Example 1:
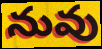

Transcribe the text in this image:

నువు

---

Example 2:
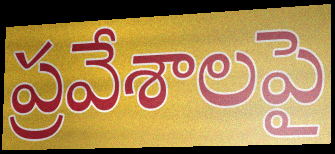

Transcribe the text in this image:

ప్రవేశాలపై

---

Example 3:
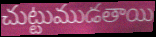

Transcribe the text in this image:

చుట్టుముడతాయి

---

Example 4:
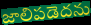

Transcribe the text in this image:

జాలిపడెదను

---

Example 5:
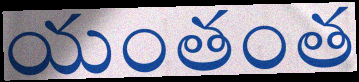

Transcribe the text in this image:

యంతంత